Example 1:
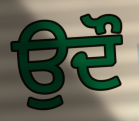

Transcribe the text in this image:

ਉਦੌ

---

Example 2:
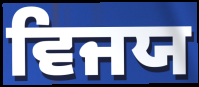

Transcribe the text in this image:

ਵਿਜਯ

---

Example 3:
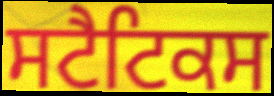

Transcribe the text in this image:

ਸਟੈਟਿਕਸ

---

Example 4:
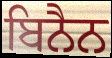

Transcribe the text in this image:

ਬਿਨੈਨ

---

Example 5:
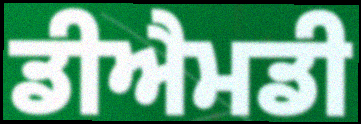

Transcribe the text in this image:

ਡੀਐਮਡੀ